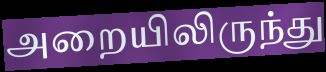
அறையிலிருந்து